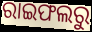
ରାଇଫଲରୁ